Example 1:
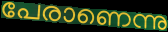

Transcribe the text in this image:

പേരാണെന്നു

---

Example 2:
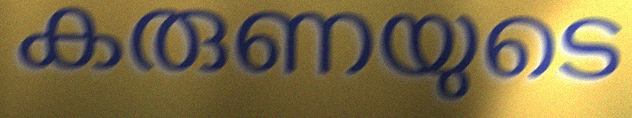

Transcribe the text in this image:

കരുണയുടെ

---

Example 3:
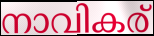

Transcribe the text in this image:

നാവികര്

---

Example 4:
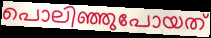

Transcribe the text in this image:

പൊലിഞ്ഞുപോയത്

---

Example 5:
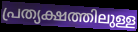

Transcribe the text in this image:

പ്രത്യക്ഷത്തിലുള്ള